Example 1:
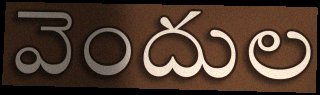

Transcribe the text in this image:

వెందుల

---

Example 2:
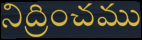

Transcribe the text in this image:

నిద్రించము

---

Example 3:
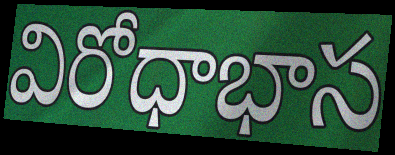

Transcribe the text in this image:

విరోధాభాస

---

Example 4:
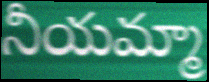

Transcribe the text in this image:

నీయమ్మా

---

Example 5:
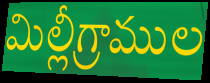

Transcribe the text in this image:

మిల్లీగ్రాముల